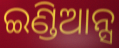
ଇଣ୍ଡିଆନ୍ସ